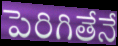
పెరిగితేనే